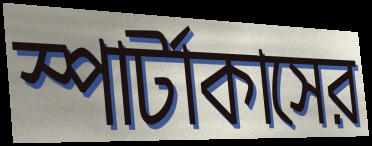
স্পার্টাকাসের